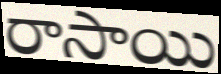
రాసాయి